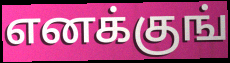
எனக்குங்